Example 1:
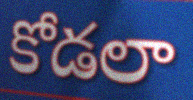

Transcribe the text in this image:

కోడలా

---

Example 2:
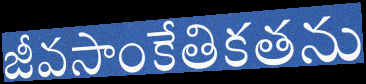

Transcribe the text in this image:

జీవసాంకేతికతను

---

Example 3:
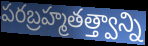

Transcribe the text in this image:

పరబ్రహ్మతత్త్వాన్ని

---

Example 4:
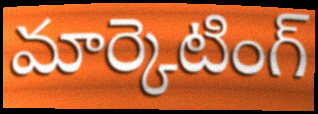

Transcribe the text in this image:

మార్కెటింగ్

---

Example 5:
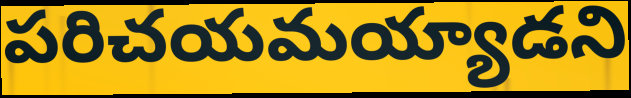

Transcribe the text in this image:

పరిచయమయ్యాడని